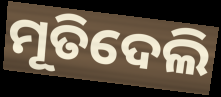
ମୂତିଦେଲି